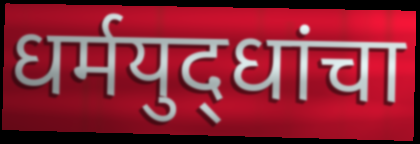
धर्मयुद्धांचा